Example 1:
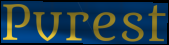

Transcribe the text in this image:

Purest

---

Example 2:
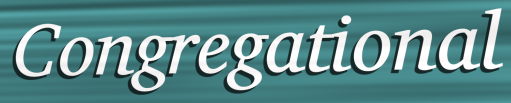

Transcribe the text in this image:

Congregational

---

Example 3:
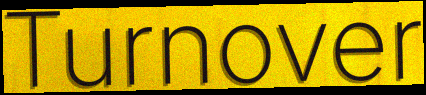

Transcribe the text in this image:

Turnover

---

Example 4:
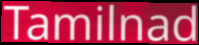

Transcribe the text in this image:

Tamilnad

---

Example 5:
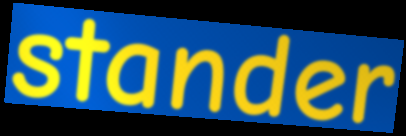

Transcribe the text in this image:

stander